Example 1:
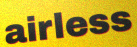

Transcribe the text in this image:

airless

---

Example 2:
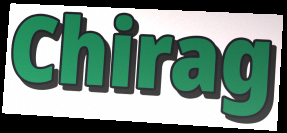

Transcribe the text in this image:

Chirag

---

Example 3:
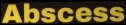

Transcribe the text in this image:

Abscess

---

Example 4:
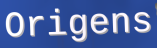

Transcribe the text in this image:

Origens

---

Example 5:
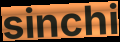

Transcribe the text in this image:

sinchi